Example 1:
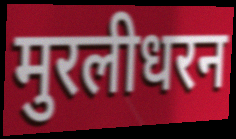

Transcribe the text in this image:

मुरलीधरन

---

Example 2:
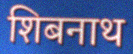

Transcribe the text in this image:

शिबनाथ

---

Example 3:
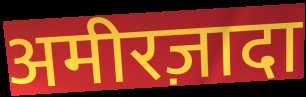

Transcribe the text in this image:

अमीरज़ादा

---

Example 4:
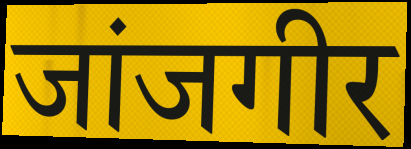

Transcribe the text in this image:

जांजगीर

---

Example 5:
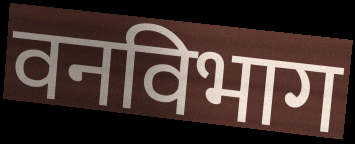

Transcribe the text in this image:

वनविभाग